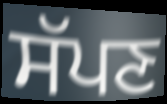
ਸੱਪਣ